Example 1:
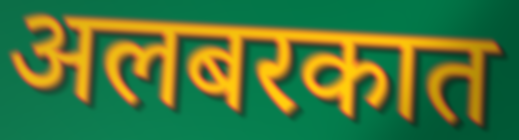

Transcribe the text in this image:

अलबरकात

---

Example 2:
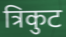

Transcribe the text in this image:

त्रिकुट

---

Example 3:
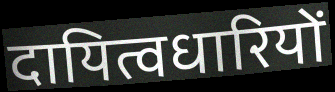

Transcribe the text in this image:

दायित्वधारियों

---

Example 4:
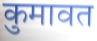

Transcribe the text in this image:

कुमावत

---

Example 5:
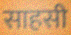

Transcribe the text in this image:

साहसी